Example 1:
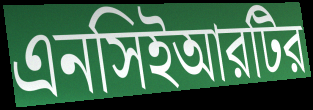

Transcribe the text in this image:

এনসিইআরটির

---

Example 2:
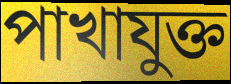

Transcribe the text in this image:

পাখাযুক্ত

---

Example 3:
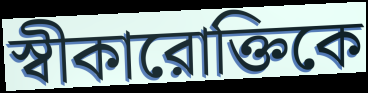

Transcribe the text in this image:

স্বীকারোক্তিকে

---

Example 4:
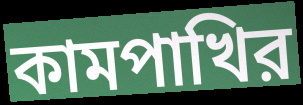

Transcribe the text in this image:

কামপাখির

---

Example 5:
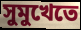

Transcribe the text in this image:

সুমুখেতে